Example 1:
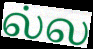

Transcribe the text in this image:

ல்ல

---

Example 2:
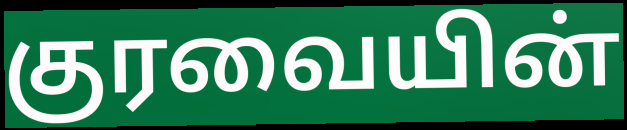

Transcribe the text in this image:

குரவையின்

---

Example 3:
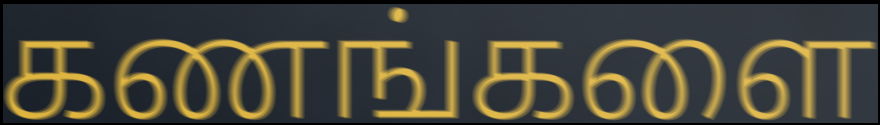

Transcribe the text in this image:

கணங்களை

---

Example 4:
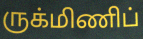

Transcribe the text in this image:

ருக்மிணிப்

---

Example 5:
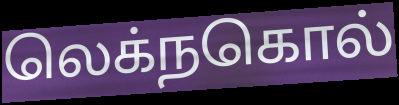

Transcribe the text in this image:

லெக்நகொல்